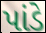
પાંડે